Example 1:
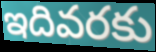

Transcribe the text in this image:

ఇదివరకు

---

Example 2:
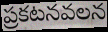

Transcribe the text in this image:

ప్రకటనవలన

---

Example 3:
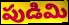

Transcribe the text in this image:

పుడిమి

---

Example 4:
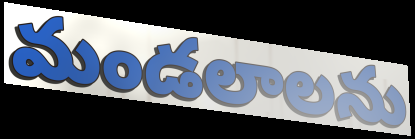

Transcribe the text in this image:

మండలాలను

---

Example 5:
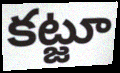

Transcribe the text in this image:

కట్జూ